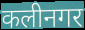
कलीनगर